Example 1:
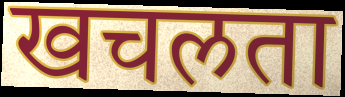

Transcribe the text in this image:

खचलता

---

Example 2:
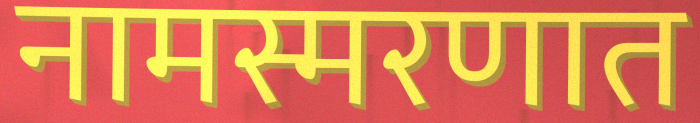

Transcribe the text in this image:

नामस्मरणात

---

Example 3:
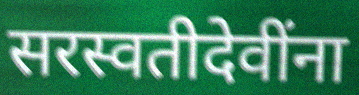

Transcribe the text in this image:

सरस्वतीदेवींना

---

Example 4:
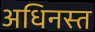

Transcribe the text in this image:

अधिनस्त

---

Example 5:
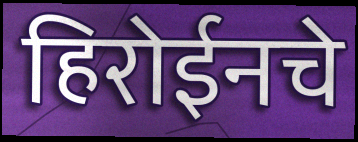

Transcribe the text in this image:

हिरोईनचे